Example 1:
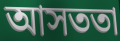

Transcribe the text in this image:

আসততা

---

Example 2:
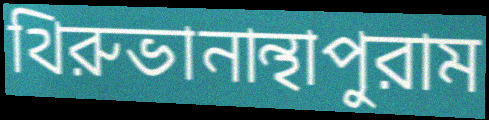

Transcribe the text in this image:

থিরুভানান্থাপুরাম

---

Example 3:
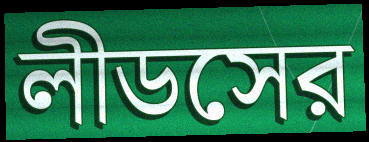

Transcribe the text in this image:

লীডসের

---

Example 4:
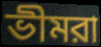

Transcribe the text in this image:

ভীমরা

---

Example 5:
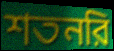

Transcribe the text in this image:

শতনরি